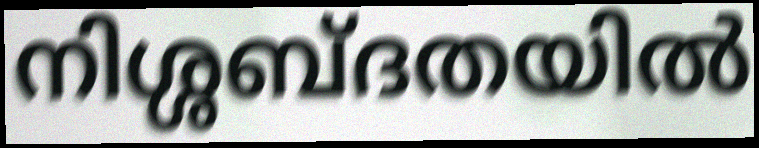
നിശ്ശബ്ദതയിൽ